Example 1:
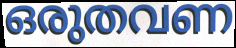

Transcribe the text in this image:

ഒരുതവണ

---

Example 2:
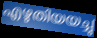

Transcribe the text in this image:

എഴുതിയയച്ചു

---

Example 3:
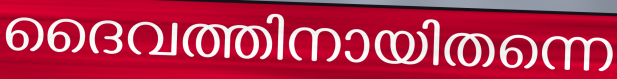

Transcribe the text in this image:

ദൈവത്തിനായിതന്നെ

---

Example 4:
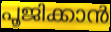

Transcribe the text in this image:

പൂജിക്കാൻ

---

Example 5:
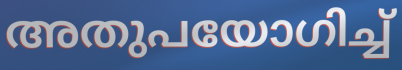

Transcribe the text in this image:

അതുപയോഗിച്ച്